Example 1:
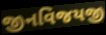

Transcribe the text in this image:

જીનવિજયજી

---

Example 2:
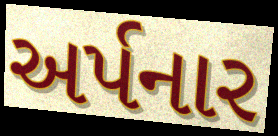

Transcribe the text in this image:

અર્પનાર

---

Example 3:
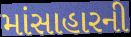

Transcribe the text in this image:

માંસાહારની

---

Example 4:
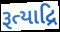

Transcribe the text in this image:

રૂત્યાદ્રિ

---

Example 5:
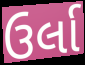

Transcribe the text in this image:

ઉર્લા